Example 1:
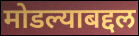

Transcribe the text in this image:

मोडल्याबद्दल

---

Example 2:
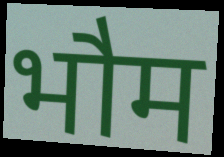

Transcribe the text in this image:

भौम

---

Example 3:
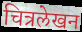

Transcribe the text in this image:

चित्रलेखन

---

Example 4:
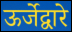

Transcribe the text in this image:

ऊर्जेद्वारे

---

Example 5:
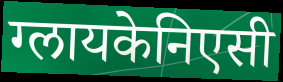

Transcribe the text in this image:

ग्लायकेनिएसी